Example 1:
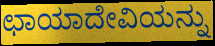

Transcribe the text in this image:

ಛಾಯಾದೇವಿಯನ್ನು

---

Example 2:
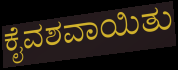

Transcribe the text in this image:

ಕೈವಶವಾಯಿತು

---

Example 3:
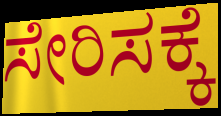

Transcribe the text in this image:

ಸೇರಿಸಕ್ಕೆ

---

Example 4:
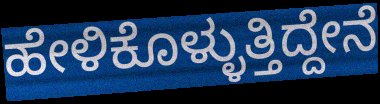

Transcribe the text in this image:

ಹೇಳಿಕೊಳ್ಳುತ್ತಿದ್ದೇನೆ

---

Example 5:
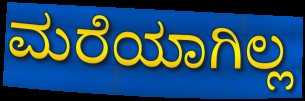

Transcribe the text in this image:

ಮರೆಯಾಗಿಲ್ಲ